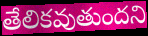
తేలికవుతుందని